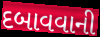
દબાવવાની